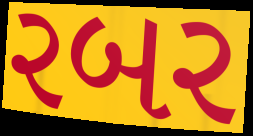
રબર